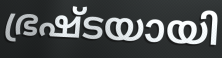
ഭ്രഷ്ടയായി